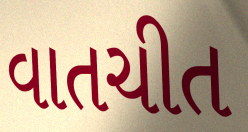
વાતચીત